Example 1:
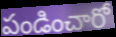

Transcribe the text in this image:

పండించారో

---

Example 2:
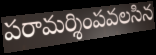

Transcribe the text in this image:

పరామర్శింపవలసిన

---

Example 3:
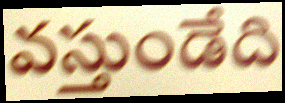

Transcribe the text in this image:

వస్తుండేది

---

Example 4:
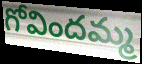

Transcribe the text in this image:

గోవిందమ్మ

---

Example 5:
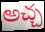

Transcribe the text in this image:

అచ్చ